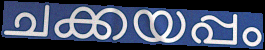
ചക്കയപ്പം